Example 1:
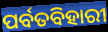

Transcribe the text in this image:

ପର୍ବତବିହାରୀ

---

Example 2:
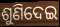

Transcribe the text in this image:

ଶୁଣିଦେଇ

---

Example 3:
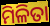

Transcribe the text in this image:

ମିଳିତା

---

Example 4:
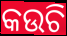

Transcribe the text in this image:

କଉଚି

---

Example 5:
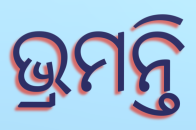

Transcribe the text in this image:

ଭ୍ରମନ୍ତି